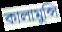
কালামুন্সি